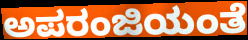
ಅಪರಂಜಿಯಂತೆ